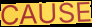
CAUSE